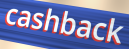
cashback